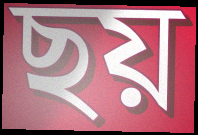
ছয়